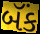
બૅંક